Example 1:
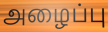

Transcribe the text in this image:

அழைப்பு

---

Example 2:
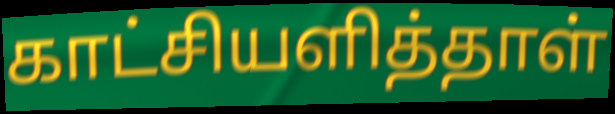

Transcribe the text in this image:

காட்சியளித்தாள்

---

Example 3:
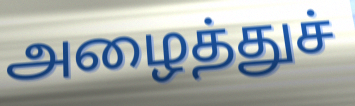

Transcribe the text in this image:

அழைத்துச்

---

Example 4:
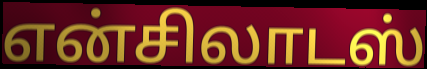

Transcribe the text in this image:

என்சிலாடஸ்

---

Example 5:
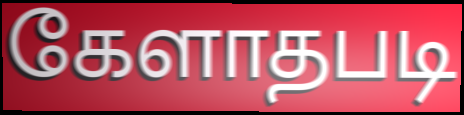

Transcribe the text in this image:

கேளாதபடி